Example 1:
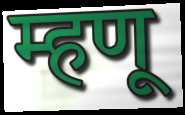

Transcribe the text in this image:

म्हणू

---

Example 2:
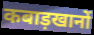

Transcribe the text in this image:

कबाड़खानों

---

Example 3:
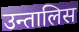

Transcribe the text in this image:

उन्तालिस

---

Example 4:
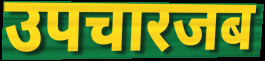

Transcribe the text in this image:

उपचारजब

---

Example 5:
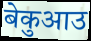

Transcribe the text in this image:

बेकुआउ